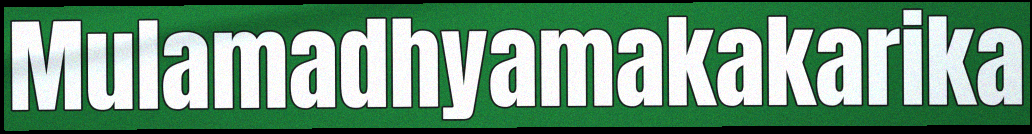
Mulamadhyamakakarika